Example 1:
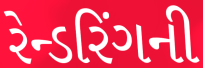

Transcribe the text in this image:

રેન્ડરિંગની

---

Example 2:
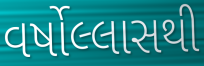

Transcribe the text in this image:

વર્ષોલ્લાસથી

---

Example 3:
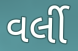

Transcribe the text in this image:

વર્લી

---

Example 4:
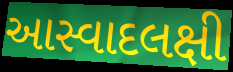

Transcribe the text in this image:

આસ્વાદલક્ષી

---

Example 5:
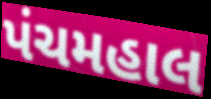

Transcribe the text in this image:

પંચમહાલ